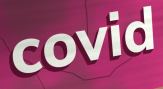
covid